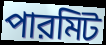
পারমিট